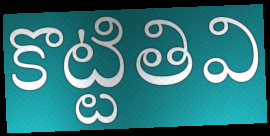
కొట్టితివి